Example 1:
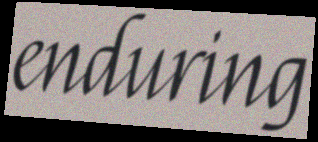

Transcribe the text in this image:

enduring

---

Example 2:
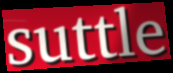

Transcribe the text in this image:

suttle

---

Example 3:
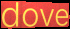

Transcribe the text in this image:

dove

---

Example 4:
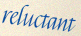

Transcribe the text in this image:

reluctant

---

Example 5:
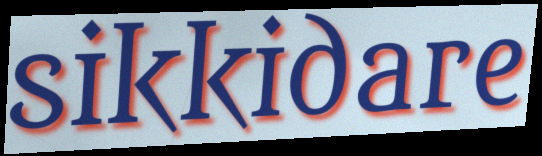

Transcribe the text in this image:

sikkidare